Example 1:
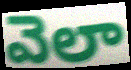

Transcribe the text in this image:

వెలా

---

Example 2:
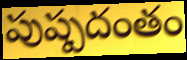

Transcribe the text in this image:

పుష్పదంతం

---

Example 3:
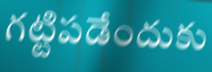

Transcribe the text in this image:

గట్టిపడేందుకు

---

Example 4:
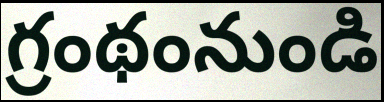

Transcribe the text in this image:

గ్రంథంనుండి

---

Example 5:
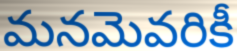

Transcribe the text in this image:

మనమెవరికీ